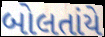
બોલતાંયે